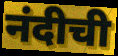
नंदीची